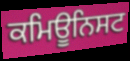
ਕਮਿਊਨਿਸਟ